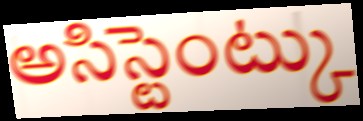
అసిస్టెంట్కు